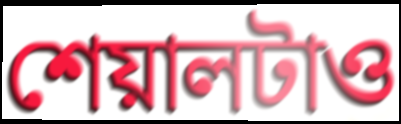
শেয়ালটাও